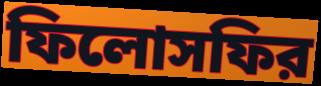
ফিলোসফির